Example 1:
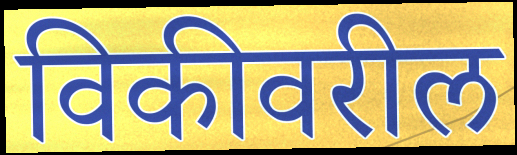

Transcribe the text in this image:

विकीवरील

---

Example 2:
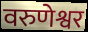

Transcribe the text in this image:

वरुणेश्वर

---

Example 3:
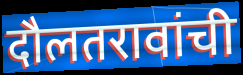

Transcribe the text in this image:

दौलतरावांची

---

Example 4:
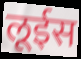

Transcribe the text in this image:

लूईस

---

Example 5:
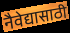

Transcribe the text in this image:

नैवेद्यासाठी